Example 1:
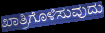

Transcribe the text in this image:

ಖಾತ್ರಿಗೊಳಿಸುವುದು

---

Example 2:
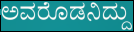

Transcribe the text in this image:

ಅವರೊಡನಿದ್ದು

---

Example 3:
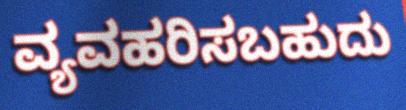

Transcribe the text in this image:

ವ್ಯವಹರಿಸಬಹುದು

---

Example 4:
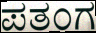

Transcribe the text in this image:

ಪತಂಗ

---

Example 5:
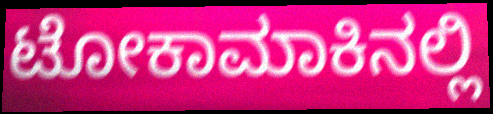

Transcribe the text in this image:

ಟೋಕಾಮಾಕಿನಲ್ಲಿ